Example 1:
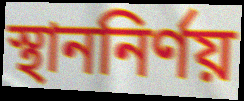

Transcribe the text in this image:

স্থাননির্ণয়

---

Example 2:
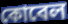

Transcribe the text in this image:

কোবেল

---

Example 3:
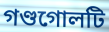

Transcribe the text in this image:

গণ্ডগোলটি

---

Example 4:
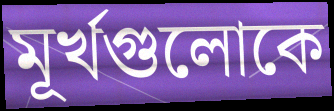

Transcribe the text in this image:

মূর্খগুলোকে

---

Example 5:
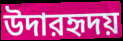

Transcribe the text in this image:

উদারহৃদয়